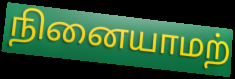
நினையாமற்